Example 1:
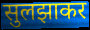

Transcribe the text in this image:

सुलझाकर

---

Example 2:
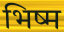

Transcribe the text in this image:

भिष्म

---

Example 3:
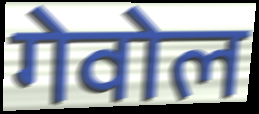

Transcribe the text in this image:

गेवोल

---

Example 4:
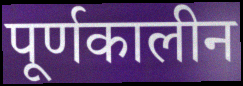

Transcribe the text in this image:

पूर्णकालीन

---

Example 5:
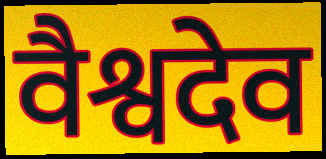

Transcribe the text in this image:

वैश्वदेव